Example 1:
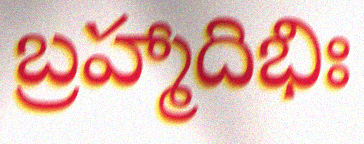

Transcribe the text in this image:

బ్రహ్మాదిభిః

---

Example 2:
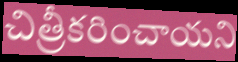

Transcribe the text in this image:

చిత్రీకరించాయని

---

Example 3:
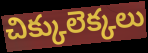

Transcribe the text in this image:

చిక్కులెక్కలు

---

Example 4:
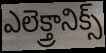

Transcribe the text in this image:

ఎలెక్త్రానిక్స్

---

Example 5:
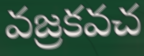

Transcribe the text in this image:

వజ్రకవచ